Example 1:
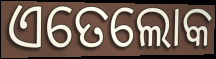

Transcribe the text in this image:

ଏତେଲୋକ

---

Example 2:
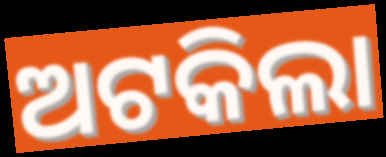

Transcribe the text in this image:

ଅଟକିଲା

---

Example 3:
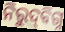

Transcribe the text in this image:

ନିରୁଦ୍‍ବିଗ୍ନ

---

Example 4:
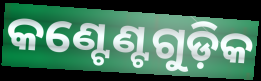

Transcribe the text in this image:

କଣ୍ଟେଣ୍ଟଗୁଡ଼ିକ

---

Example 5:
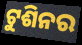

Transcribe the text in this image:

ଟୁଶିନର